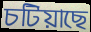
চটিয়াছে